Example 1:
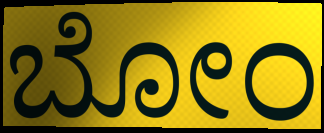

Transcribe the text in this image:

ಬೋಂ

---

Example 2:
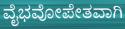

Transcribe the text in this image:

ವೈಭವೋಪೇತವಾಗಿ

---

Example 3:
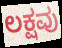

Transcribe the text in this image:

ಲಕ್ಷವು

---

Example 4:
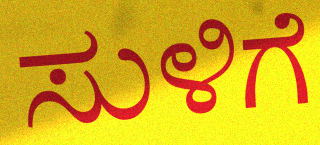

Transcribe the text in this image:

ಸುಳಿಗೆ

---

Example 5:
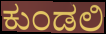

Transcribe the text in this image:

ಕುಂಡಲಿ